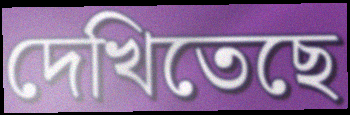
দেখিতেছে